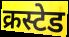
क्रस्टेड